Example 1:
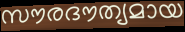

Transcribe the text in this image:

സൗരദൗത്യമായ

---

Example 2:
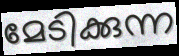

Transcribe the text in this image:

മേടിക്കുന്ന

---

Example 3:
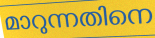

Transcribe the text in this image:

മാറുന്നതിനെ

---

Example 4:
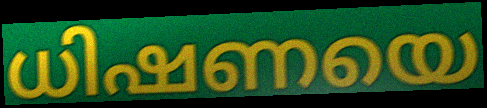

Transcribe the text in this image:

ധിഷണയെ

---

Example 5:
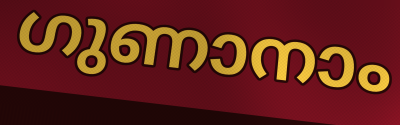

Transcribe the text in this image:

ഗുണാനാം